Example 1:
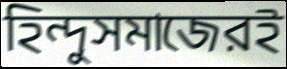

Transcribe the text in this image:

হিন্দুসমাজেরই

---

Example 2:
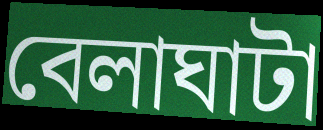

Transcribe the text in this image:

বেলাঘাটা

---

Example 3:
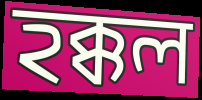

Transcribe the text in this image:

হক্কল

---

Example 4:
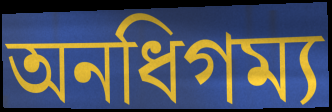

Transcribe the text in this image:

অনধিগম্য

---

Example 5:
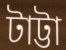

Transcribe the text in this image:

টাট্টা